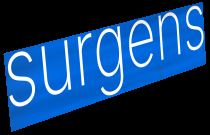
surgens